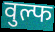
वुल्फ